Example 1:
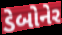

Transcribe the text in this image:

ડેબોનેર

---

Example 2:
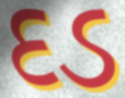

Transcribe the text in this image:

દડ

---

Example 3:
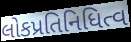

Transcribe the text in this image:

લોકપ્રતિનિધિત્વ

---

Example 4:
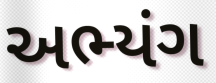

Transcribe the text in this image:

અભ્યંગ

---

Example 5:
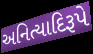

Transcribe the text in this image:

અનિત્યાદિરૂપે